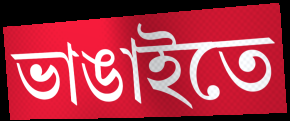
ভাঙাইতে